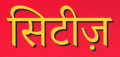
सिटीज़